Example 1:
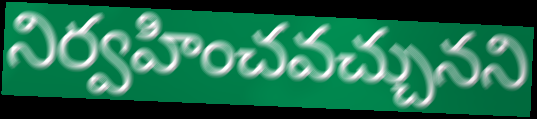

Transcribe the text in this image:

నిర్వహించవచ్చునని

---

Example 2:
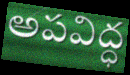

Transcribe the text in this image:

అపవిద్ధ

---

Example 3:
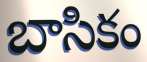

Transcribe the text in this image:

బాసికం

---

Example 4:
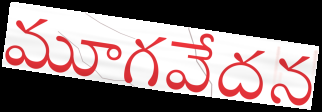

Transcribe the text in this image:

మూగవేదన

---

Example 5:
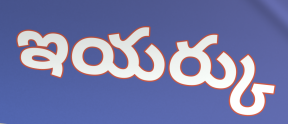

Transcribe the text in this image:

ఇయర్కు